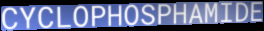
CYCLOPHOSPHAMIDE